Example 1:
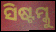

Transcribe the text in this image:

ସିଷ୍ଟମ୍କୁ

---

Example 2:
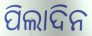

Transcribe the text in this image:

ପିଲାଦିନ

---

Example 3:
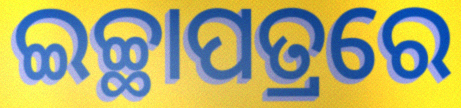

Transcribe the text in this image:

ଇଚ୍ଛାପତ୍ରରେ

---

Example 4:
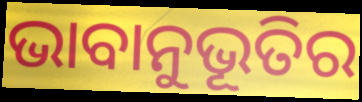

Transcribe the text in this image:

ଭାବାନୁଭୂତିର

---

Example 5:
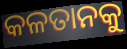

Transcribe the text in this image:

କଳତାନକୁ